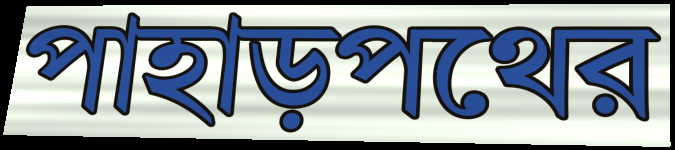
পাহাড়পথের